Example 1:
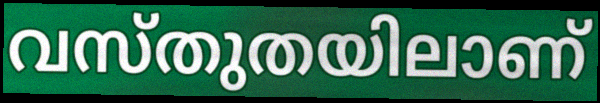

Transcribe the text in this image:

വസ്തുതയിലാണ്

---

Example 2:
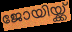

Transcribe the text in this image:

ജോയിയ്ക്ക്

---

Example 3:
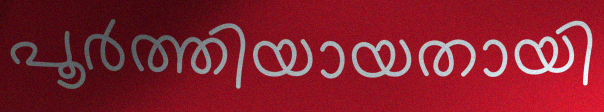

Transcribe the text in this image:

പൂർത്തിയായതായി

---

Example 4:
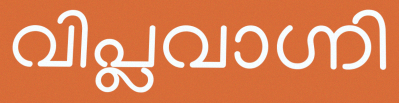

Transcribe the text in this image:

വിപ്ലവാഗ്നി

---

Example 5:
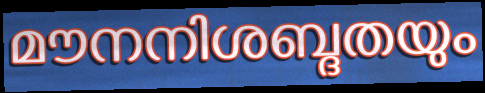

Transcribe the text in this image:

മൗനനിശബ്ദതയും